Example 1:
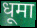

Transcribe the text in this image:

धूमा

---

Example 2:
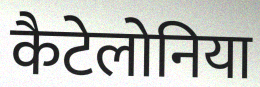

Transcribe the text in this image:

कैटेलोनिया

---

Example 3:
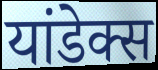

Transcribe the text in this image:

यांडेक्स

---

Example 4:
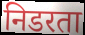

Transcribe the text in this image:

निडरता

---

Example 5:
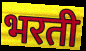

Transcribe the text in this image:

भरती